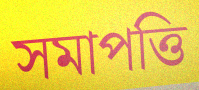
সমাপত্তি